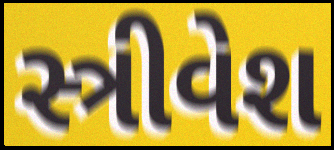
સ્ત્રીવેશ